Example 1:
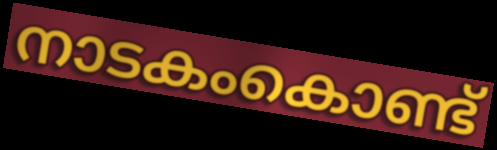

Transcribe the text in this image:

നാടകംകൊണ്ട്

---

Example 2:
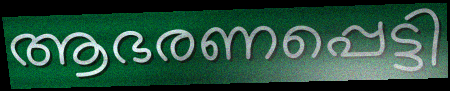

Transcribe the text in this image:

ആഭരണപ്പെട്ടി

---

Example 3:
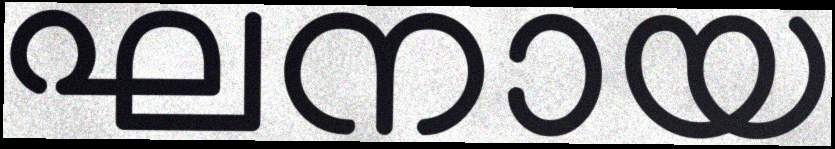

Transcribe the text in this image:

ഘനായ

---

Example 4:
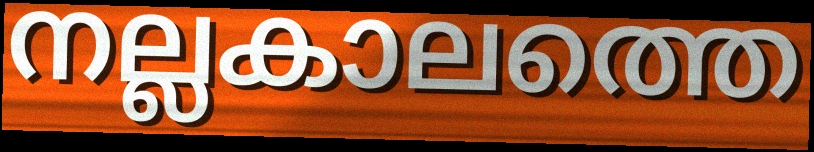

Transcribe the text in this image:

നല്ലകാലത്തെ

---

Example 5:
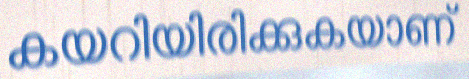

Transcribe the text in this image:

കയറിയിരിക്കുകയാണ്